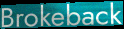
Brokeback